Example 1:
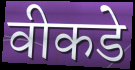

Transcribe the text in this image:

वीकडे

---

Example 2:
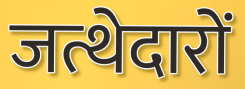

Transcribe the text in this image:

जत्थेदारों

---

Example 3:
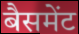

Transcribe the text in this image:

बैसमेंट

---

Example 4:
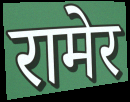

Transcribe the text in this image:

रामेर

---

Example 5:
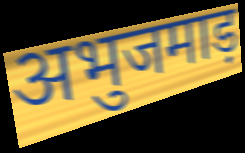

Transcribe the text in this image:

अभुजमाड़